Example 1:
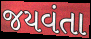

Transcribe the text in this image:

જયવંતા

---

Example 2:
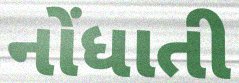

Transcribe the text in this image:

નોંધાતી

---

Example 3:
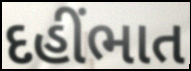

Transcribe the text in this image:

દહીંભાત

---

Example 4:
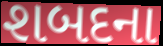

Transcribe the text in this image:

શબદના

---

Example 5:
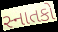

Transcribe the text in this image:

સ્નાતકો